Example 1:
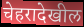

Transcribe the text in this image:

चेहरादेखील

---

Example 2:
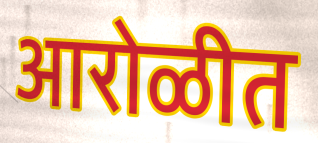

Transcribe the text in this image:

आरोळीत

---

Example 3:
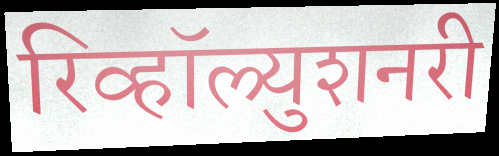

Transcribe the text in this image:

रिव्हॉल्युशनरी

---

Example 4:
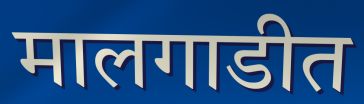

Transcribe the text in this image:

मालगाडीत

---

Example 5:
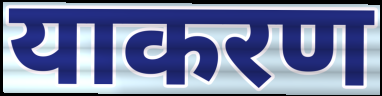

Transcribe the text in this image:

याकरण